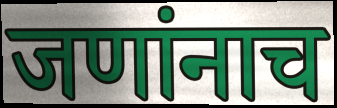
जणांनाच